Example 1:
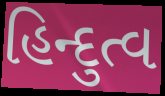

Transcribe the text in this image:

હિન્દુત્વ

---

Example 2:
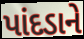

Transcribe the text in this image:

પાંદડાને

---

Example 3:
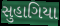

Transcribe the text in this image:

સુહાગિયા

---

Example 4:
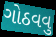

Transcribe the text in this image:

ગોઠવવુ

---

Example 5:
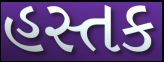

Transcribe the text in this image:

હસ્તક